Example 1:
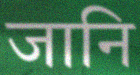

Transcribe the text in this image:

जानि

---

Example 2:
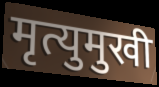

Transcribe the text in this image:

मृत्युमुखी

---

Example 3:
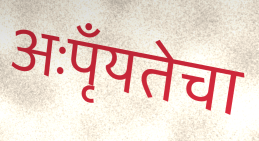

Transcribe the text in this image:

अःपृँयतेचा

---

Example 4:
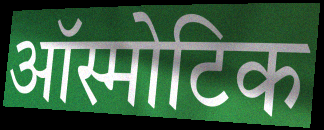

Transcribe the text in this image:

ऑस्मोटिक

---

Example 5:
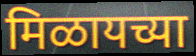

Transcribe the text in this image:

मिळायच्या